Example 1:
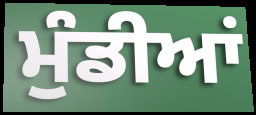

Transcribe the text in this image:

ਮੁੰਡੀਆਂ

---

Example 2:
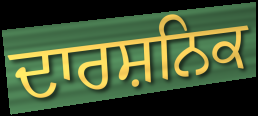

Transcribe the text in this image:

ਦਾਰਸ਼ਨਿਕ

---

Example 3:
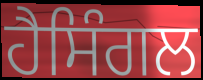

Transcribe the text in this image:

ਹੈਸਿੰਗਲ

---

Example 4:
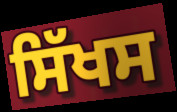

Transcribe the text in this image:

ਸਿੱਖਸ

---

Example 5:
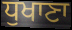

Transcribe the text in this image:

ਧੁਖਾਣਾ